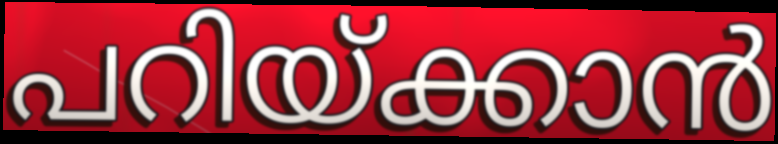
പറിയ്ക്കാൻ